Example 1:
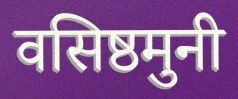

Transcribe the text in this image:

वसिष्ठमुनी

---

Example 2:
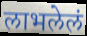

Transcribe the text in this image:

लाभलेलं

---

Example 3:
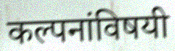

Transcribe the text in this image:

कल्पनांविषयी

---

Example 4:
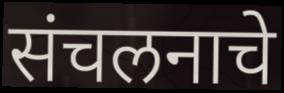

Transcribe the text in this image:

संचलनाचे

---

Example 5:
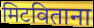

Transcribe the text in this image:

मिटविताना